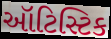
ઑટિસ્ટિક